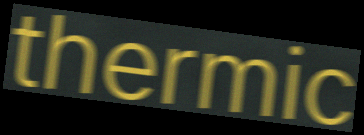
thermic